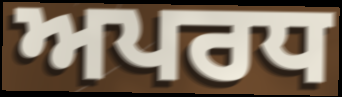
ਅਪਰਧ